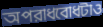
অপরাধবোধটাও